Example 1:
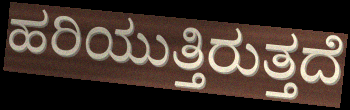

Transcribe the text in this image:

ಹರಿಯುತ್ತಿರುತ್ತದೆ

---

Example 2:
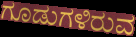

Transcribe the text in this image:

ಗೂಡುಗಳಿರುವ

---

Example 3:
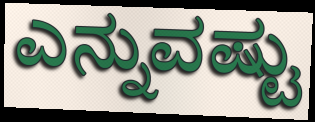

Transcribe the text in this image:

ಎನ್ನುವಷ್ಟು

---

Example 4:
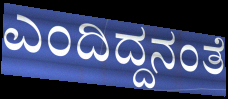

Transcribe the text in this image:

ಎಂದಿದ್ದನಂತೆ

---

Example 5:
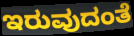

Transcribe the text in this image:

ಇರುವುದಂತೆ